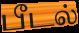
பீடல்